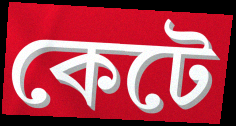
কেটে